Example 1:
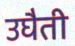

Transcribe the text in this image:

उघैती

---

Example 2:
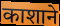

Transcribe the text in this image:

काशाने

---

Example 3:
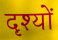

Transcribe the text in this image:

दृश्यों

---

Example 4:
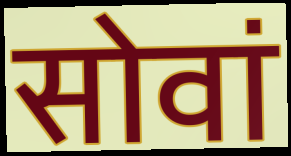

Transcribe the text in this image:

सोवां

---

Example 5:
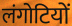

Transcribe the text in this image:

लंगोटियों